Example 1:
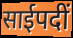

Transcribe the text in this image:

साईपदीं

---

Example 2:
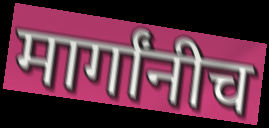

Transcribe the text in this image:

मार्गांनीच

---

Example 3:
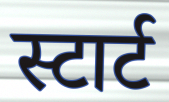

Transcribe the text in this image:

स्टार्ट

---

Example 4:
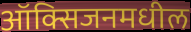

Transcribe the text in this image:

ऑक्सिजनमधील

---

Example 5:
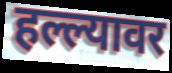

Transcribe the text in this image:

हल्ल्यावर